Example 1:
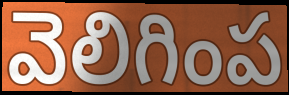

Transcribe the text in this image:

వెలిగింప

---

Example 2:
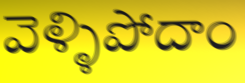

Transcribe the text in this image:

వెళ్ళిపోదాం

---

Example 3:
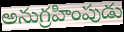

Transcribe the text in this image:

అనుగ్రహింపుడు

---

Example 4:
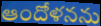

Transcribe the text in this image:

ఆందోళనను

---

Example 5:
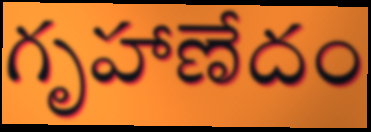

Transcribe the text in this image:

గృహాణేదం